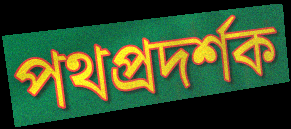
পথপ্রদর্শক